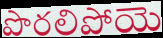
పొరలిపోయె